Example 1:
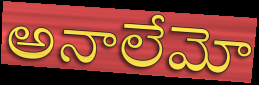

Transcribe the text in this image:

అనాలేమో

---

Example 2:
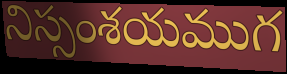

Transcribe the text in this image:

నిస్సంశయముగ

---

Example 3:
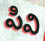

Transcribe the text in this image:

పివి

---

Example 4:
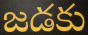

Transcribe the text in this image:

జడకు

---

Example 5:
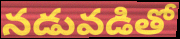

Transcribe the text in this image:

నడువడితో